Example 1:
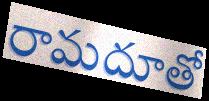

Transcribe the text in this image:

రామదూతో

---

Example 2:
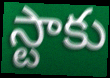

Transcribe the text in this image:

స్టాకు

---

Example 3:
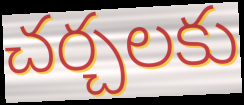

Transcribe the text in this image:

చర్చలకు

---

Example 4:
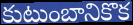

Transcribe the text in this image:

కుటుంబానికొక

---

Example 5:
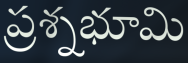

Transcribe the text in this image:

ప్రశ్నభూమి